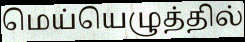
மெய்யெழுத்தில்